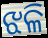
ଝଳି